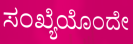
ಸಂಖ್ಯೆಯೊಂದೇ